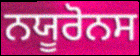
ਨਯੂਰੋਨਸ